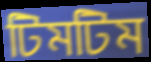
টিমটিম